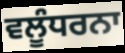
ਵਲੂੰਧਰਨਾ